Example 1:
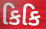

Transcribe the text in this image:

કિકિ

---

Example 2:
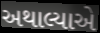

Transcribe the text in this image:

અથાલ્યાએ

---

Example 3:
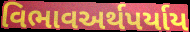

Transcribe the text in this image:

વિભાવઅર્થપર્યાય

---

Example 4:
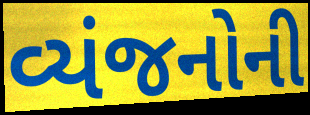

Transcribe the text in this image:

વ્યંજનોની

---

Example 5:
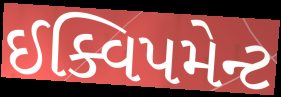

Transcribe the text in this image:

ઈક્વિપમેન્ટ